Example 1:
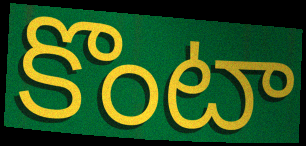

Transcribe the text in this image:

కొంటా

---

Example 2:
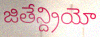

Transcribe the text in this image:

జితేన్ద్రియో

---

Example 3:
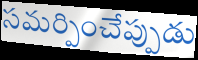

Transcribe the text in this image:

సమర్పించేప్పుడు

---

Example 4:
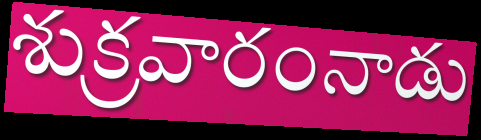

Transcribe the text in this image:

శుక్రవారంనాడు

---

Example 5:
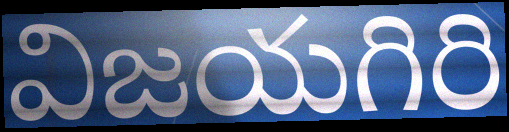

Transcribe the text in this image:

విజయగిరి